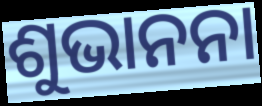
ଶୁଭାନନା